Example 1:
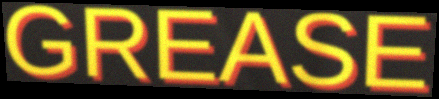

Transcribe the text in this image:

GREASE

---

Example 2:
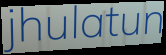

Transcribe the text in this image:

jhulatun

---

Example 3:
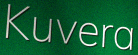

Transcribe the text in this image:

Kuvera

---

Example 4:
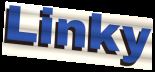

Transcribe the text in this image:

Linky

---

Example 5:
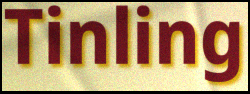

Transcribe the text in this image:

Tinling